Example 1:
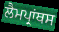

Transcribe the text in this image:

ਲੈਮਪ੍ਰਾਂਥਸ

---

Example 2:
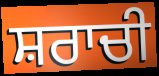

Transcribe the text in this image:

ਸ਼ਰਾਚੀ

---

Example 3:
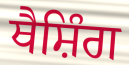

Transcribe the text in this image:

ਥੈਸ਼ਿੰਗ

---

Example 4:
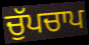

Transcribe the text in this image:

ਚੁੱਪਚਾਪ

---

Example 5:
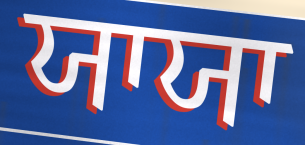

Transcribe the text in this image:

ਯਾਯਾ